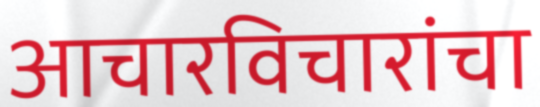
आचारविचारांचा